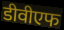
डीवीएफ